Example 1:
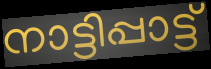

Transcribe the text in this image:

നാട്ടിപ്പാട്ട്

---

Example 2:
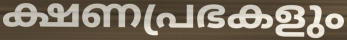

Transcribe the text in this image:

ക്ഷണപ്രഭകളും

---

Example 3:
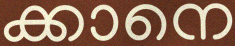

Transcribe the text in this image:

ക്കാനെ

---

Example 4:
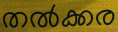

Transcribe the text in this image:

തൽക്കര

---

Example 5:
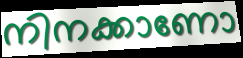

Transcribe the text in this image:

നിനക്കാണോ